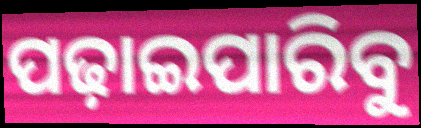
ପଢ଼ାଇପାରିବୁ